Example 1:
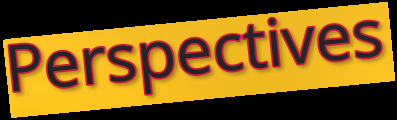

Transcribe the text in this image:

Perspectives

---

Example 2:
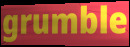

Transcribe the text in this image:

grumble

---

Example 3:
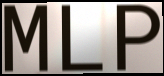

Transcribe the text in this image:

MLP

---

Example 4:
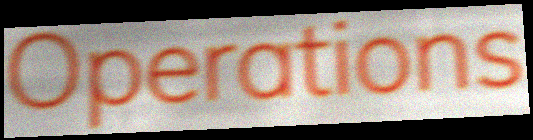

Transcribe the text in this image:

Operations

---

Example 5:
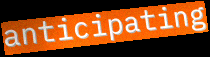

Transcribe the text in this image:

anticipating